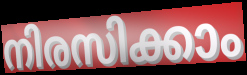
നിരസിക്കാം